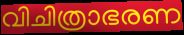
വിചിത്രാഭരണ